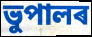
ভুপালৰ